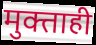
मुक्ताही